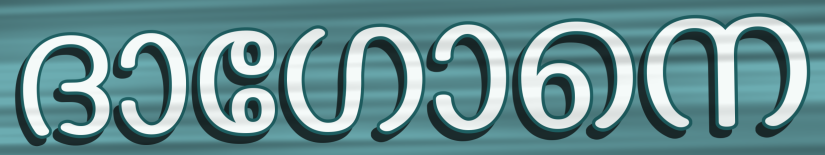
ദാഗോനെ